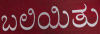
ಬಲಿಯಿತು